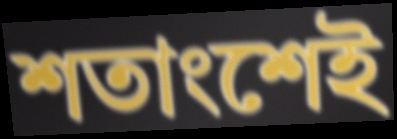
শতাংশেই